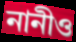
নানীও